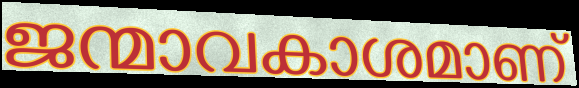
ജന്മാവകാശമാണ്